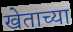
खेताच्या